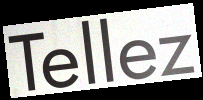
Tellez